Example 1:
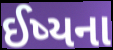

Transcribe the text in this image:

ઈષ્યના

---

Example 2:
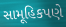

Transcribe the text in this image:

સામૂહિકપણે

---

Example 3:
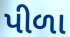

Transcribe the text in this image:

પીળા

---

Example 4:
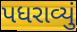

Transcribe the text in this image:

પધરાવ્યું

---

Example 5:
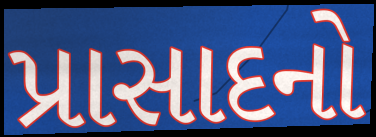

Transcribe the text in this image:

પ્રાસાદનો